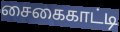
சைகைகாட்டி